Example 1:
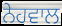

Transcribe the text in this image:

ਨੇਹਵਾਲ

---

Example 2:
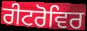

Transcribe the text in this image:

ਰੀਟਰੋਵਿਰ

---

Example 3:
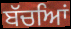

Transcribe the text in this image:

ਬੱਚਆਿਂ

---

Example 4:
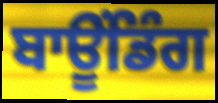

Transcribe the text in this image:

ਬਾਊਂਡਿੰਗ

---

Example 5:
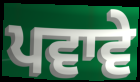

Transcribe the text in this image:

ਪਵਾਵੇ